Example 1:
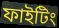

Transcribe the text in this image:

ফাইটিং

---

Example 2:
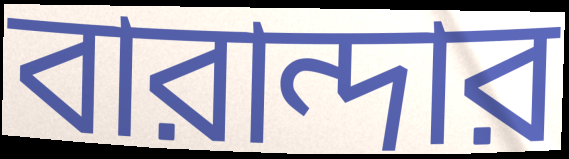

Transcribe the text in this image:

বারান্দার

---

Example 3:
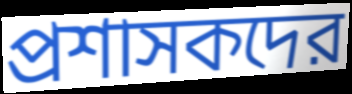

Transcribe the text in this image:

প্রশাসকদের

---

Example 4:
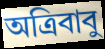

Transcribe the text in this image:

অত্রিবাবু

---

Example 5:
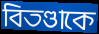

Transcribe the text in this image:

বিতণ্ডাকে